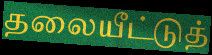
தலையீட்டுத்